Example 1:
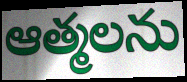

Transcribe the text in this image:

ఆత్మలను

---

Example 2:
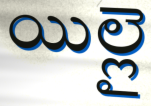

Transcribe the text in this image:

యిల్లై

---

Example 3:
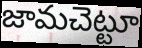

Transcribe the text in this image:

జామచెట్టూ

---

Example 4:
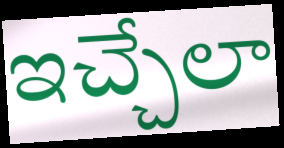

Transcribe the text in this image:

ఇచ్చేలా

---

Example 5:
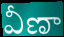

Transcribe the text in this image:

వీణా